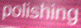
polishing